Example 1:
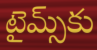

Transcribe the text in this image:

టైమ్స్‌కు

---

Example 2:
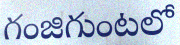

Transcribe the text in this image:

గంజిగుంటలో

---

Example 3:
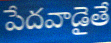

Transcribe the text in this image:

పేదవాడైతే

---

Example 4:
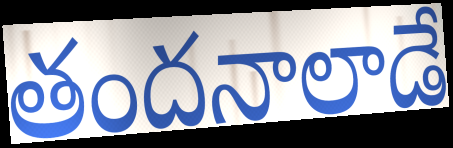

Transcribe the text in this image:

తందనాలాడే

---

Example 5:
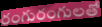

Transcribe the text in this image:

రంగురంగులతో